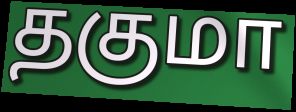
தகுமா